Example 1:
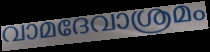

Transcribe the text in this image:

വാമദേവാശ്രമം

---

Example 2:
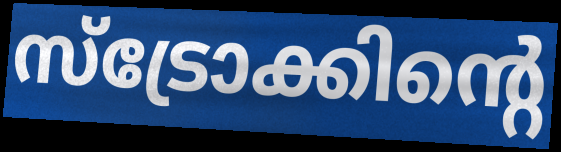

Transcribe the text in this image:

സ്ട്രോക്കിന്റെ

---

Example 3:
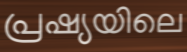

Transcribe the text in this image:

പ്രഷ്യയിലെ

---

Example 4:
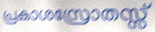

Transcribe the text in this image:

പ്രകാശസ്രോതസ്സ്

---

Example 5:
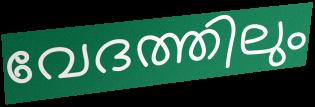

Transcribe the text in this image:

വേദത്തിലും